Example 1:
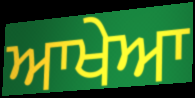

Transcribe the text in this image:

ਆਖੇਆ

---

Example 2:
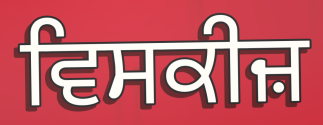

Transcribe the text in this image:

ਵਿਸਕੀਜ਼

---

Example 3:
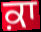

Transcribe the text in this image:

ਕ਼ਾ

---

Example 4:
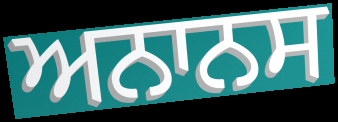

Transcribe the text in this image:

ਅਨਾਨਸ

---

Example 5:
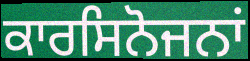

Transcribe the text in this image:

ਕਾਰਸਿਨੋਜਨਾਂ